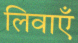
लिवाएँ